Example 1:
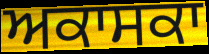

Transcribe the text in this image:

ਅਕਾਸਕਾ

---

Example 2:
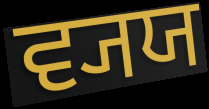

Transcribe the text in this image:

ਵ੍ਯਯ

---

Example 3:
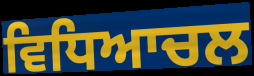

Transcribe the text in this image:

ਵਿਧਿਆਚਲ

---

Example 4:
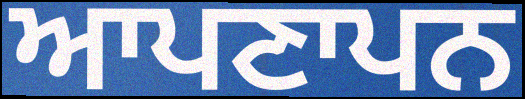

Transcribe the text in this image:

ਆਪਣਾਪਨ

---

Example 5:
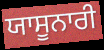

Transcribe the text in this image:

ਯਾਸੂਨਾਰੀ